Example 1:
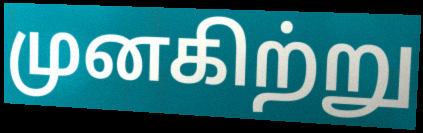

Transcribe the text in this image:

முனகிற்று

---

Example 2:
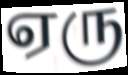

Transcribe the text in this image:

ஏரு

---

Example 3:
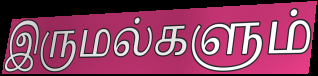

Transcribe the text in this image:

இருமல்களும்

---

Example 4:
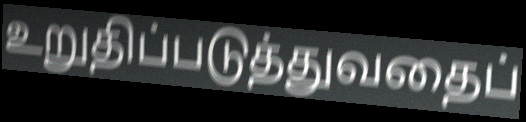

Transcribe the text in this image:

உறுதிப்படுத்துவதைப்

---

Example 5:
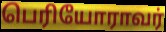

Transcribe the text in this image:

பெரியோராவர்